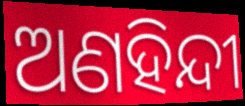
ଅଣହିନ୍ଦୀ